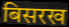
बिसरख